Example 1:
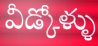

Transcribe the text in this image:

వీడ్కోళ్ళు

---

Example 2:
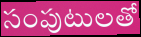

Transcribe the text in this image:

సంపుటులతో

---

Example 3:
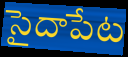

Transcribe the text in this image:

సైదాపేట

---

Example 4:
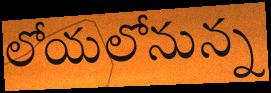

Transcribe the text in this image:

లోయలోనున్న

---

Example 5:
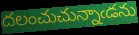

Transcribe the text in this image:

దలంచుచున్నాఁడను